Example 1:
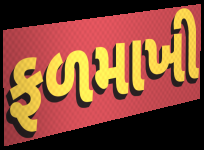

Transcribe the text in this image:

ફળમાખી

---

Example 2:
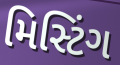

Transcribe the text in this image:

મિસ્ટિંગ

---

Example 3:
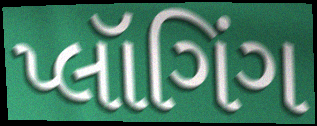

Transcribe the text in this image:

પ્લૉગિંગ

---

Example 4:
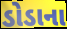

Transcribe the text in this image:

ડોડાના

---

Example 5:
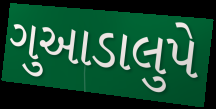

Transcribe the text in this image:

ગુઆડાલુપે